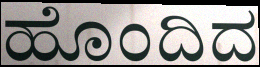
ಹೊಂದಿದ